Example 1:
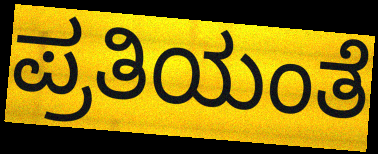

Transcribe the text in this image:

ಪ್ರತಿಯಂತೆ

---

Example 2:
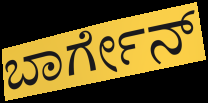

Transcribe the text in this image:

ಬಾರ್ಗೇನ್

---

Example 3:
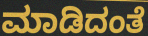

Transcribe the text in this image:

ಮಾಡಿದಂತೆ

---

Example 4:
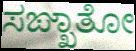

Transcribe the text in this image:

ಸಙ್ಖಾತೋ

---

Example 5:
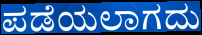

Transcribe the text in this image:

ಪಡೆಯಲಾಗದು